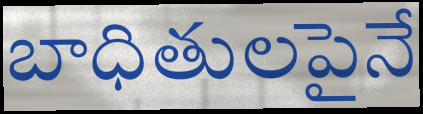
బాధితులపైనే